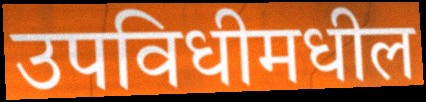
उपविधीमधील